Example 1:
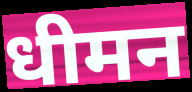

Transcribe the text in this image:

धीमन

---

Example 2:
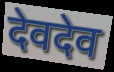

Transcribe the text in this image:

देवदेव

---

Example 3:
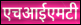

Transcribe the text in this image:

एचआईएमटी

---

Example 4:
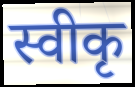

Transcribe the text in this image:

स्वीकृ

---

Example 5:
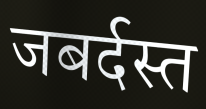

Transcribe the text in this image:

जबर्दस्त